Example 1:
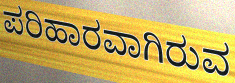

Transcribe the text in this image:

ಪರಿಹಾರವಾಗಿರುವ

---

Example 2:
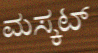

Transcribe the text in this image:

ಮಸ್ಕಟ್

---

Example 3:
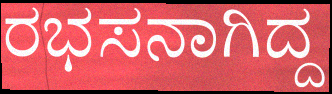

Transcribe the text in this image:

ರಭಸನಾಗಿದ್ದ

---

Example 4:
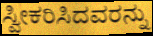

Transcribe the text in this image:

ಸ್ವೀಕರಿಸಿದವರನ್ನು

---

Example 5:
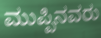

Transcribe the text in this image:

ಮುಪ್ಪಿನವರು